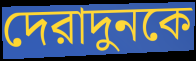
দেরাদুনকে